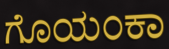
ಗೊಯಂಕಾ